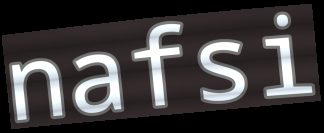
nafsi